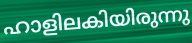
ഹാളിലകിയിരുന്നു